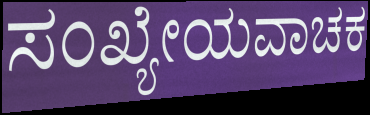
ಸಂಖ್ಯೇಯವಾಚಕ